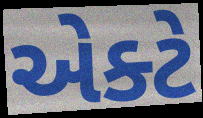
એક્ટે